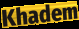
Khadem